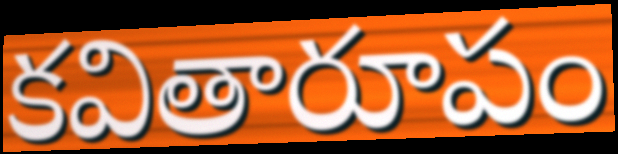
కవితారూపం